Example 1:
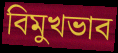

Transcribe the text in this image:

বিমুখভাব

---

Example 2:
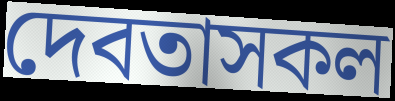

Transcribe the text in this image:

দেবতাসকল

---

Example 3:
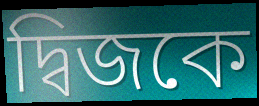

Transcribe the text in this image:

দ্বিজকে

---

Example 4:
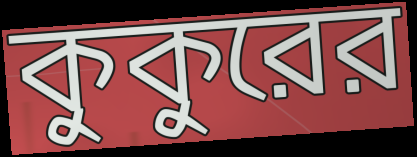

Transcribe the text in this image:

কুকুরের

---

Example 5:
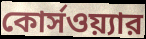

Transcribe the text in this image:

কোর্সওয়্যার